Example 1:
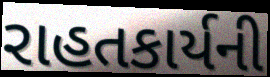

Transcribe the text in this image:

રાહતકાર્યની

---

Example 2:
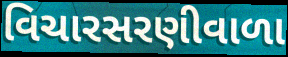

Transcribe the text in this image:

વિચારસરણીવાળા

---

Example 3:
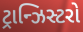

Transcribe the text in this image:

ટ્રાન્ઝિસ્ટરો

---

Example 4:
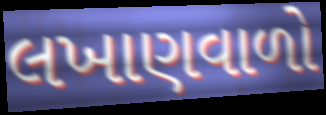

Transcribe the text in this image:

લખાણવાળો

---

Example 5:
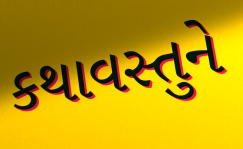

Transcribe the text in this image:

કથાવસ્તુને